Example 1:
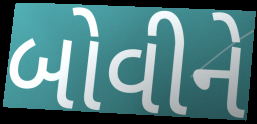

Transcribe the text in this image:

બોવીને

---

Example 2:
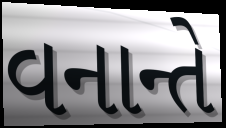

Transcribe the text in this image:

વનાન્તે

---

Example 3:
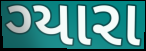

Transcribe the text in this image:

ગ્યારા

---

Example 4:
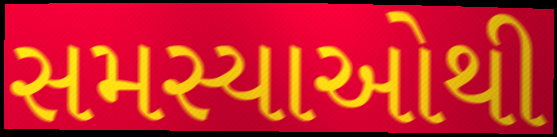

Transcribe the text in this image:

સમસ્યાઓથી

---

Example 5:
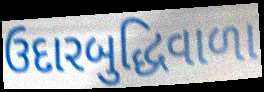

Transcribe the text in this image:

ઉદારબુદ્ધિવાળા